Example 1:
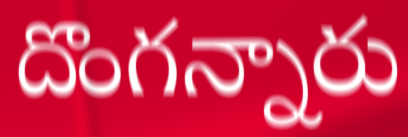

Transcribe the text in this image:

దొంగన్నారు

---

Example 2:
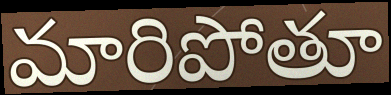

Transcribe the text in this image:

మారిపోతూ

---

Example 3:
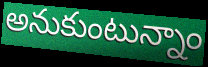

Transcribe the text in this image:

అనుకుంటున్నాం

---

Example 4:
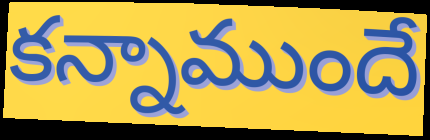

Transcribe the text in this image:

కన్నాముందే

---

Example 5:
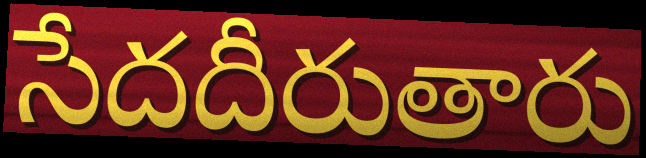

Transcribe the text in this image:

సేదదీరుతారు